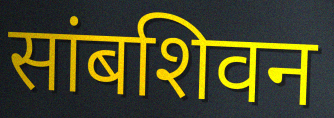
सांबशिवन